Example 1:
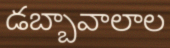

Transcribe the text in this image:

డబ్బావాలాల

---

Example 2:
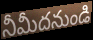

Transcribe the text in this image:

నీమీదనుండి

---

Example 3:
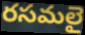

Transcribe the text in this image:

రసమలై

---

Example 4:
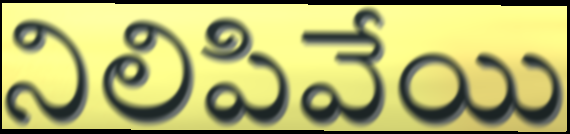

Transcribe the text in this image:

నిలిపివేయి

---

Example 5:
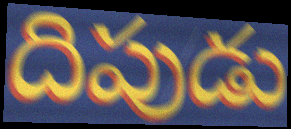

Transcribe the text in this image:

దిపుడు